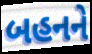
બહનને